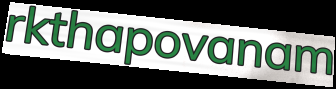
rkthapovanam